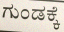
ಗುಂಡಕ್ಕೆ